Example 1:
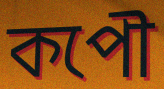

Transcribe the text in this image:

কপৌ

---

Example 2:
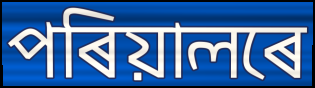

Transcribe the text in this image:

পৰিয়ালৰে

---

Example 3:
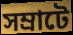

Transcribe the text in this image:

সম্ৰাটে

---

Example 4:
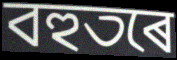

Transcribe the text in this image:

বহুতৰে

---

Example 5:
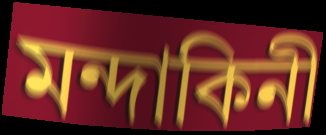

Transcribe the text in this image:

মন্দাকিনী